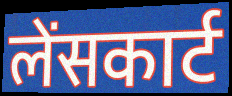
लेंसकार्ट